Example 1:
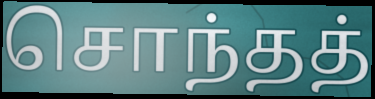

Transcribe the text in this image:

சொந்தத்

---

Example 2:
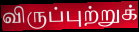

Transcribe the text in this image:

விருப்புற்றுக்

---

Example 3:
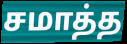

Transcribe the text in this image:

சமாத்த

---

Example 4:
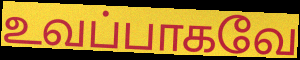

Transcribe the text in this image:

உவப்பாகவே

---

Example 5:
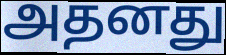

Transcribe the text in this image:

அதனது